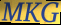
MKG